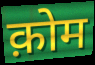
क़ोम